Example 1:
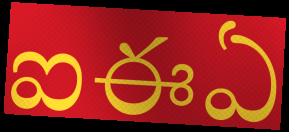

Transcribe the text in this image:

ఐఈఏ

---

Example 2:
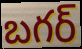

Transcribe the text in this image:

బగర్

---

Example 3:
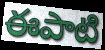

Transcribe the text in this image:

ఈపాటి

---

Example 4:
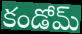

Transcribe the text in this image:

కండోమ్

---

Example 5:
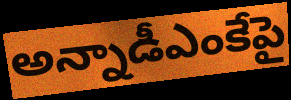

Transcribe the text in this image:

అన్నాడీఎంకేపై